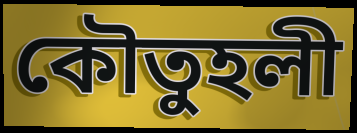
কৌতুহলী